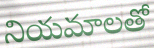
నియమాలతో